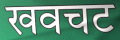
खवचट